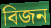
বিজন